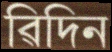
ৱিদিন